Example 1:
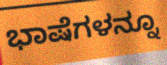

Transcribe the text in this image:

ಭಾಷೆಗಳನ್ನೂ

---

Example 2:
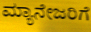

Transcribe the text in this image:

ಮ್ಯಾನೇಜರಿಗೆ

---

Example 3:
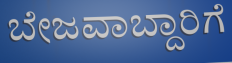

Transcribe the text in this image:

ಬೇಜವಾಬ್ದಾರಿಗೆ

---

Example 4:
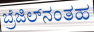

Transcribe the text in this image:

ಬ್ರೆಜಿಲ್‌ನಂತಹ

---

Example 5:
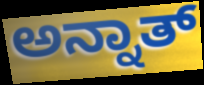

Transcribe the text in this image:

ಅನ್ನಾತ್